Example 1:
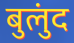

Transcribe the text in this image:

बुलुंद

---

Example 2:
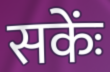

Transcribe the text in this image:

सकेंः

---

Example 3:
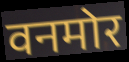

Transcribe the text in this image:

वनमोर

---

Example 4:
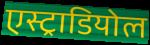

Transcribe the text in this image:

एस्ट्राडियोल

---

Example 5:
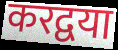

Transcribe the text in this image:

करद्वया